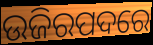
ଉଜିରପଦରେ